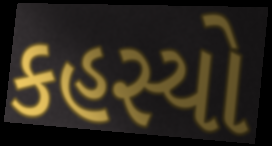
કહસ્યો